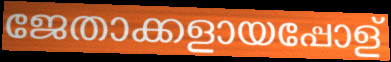
ജേതാക്കളായപ്പോള്